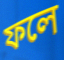
ফলে